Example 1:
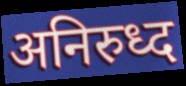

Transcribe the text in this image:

अनिरुध्द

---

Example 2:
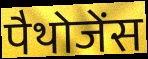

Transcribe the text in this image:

पैथोजेंस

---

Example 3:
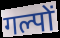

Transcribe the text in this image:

गल्पों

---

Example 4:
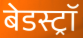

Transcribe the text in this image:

बेडस्ट्रॉ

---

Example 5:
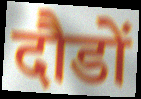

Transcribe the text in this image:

दौडों